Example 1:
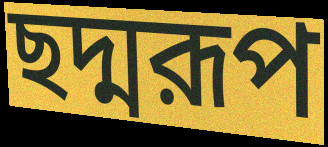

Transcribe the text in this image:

ছদ্মরূপ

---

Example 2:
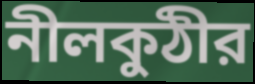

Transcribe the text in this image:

নীলকুঠীর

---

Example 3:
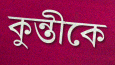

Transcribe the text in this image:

কুন্তীকে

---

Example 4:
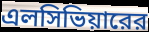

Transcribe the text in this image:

এলসিভিয়ারের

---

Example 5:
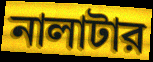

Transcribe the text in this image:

নালাটার